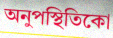
অনুপস্থিতিকো